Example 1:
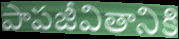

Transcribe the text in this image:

పాపజీవితానికి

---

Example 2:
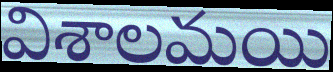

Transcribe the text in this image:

విశాలమయి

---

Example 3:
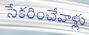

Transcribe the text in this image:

సేకరించేవాళ్లు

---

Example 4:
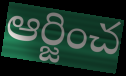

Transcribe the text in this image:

ఆర్జించ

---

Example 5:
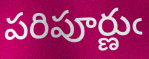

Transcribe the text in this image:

పరిపూర్ణుఁ